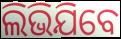
ଲିଭିଯିବେ